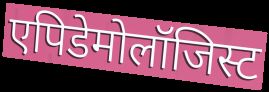
एपिडेमोलॉजिस्ट